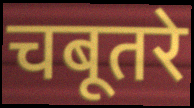
चबूतरे